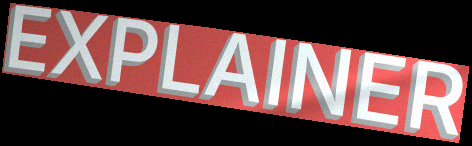
EXPLAINER